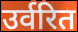
उर्वरित